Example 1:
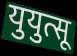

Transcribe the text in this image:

युयुत्सू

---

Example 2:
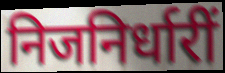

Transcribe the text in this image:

निजनिर्धारीं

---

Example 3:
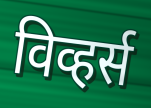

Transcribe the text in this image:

विव्हर्स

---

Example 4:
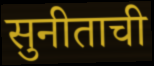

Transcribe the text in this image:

सुनीताची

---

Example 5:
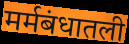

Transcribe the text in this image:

मर्मबंधातली